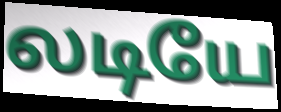
லடியே